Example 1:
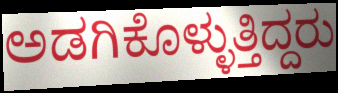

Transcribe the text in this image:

ಅಡಗಿಕೊಳ್ಳುತ್ತಿದ್ದರು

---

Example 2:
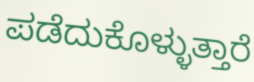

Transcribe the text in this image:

ಪಡೆದುಕೊಳ್ಳುತ್ತಾರೆ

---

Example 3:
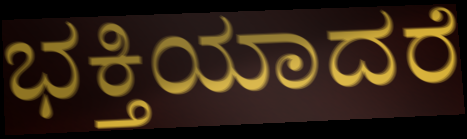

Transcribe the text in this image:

ಭಕ್ತಿಯಾದರೆ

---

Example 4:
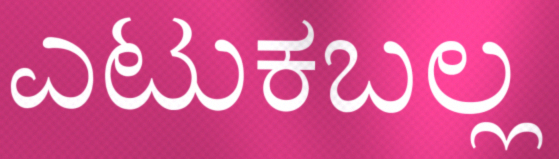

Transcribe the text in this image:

ಎಟುಕಬಲ್ಲ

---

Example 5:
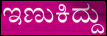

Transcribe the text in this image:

ಇಣುಕಿದ್ದು